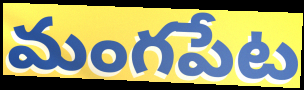
మంగపేట